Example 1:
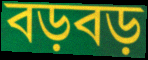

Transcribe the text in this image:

বড়বড়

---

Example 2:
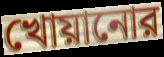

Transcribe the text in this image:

খোয়ানোর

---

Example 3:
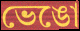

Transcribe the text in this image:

ভেঙো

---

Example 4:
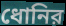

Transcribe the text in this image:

ধোনির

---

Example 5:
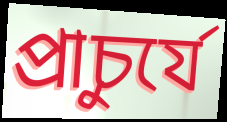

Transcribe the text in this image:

প্রাচুর্যে